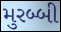
મુરબ્બી